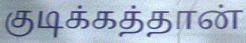
குடிக்கத்தான்